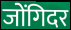
जोंगिदर